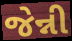
જેન્ની